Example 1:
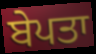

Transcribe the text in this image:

ਬੇਪਤਾ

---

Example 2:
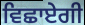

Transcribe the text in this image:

ਵਿਛਾਏਗੀ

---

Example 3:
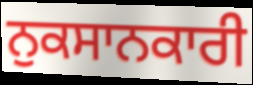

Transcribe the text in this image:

ਨੁਕਸਾਨਕਾਰੀ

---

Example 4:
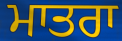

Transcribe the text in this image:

ਮਾਤਰਾ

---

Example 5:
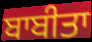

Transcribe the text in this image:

ਬਾਬੀਤਾ